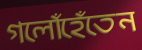
গলোঁহেঁতেন